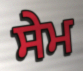
ਸੇਮ